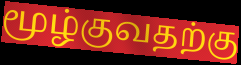
மூழ்குவதற்கு